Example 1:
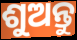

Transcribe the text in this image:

ଶୁଅନ୍ତୁ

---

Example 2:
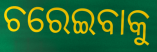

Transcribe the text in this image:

ଚରେଇବାକୁ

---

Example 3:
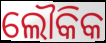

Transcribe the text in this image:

ଲୌକିକ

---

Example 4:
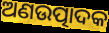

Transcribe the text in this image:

ଅଣଉତ୍ପାଦକ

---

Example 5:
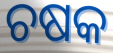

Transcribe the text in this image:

ଚଷକ